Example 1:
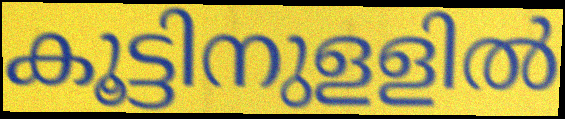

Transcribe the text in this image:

കൂട്ടിനുളളിൽ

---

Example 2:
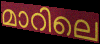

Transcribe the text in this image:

മാറിലെ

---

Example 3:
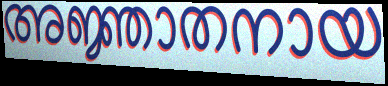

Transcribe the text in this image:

അജ്ഞാതനായ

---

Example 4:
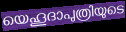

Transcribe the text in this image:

യെഹൂദാപുത്രിയുടെ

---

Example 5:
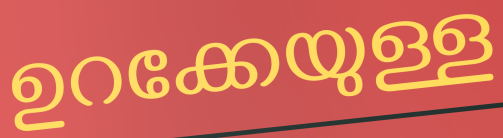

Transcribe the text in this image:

ഉറക്കേയുള്ള